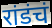
रांडंचं